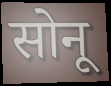
सोनू